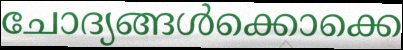
ചോദ്യങ്ങൾക്കൊക്കെ